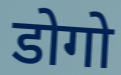
डोगो